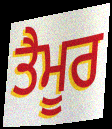
ਤੈਮੂਰ